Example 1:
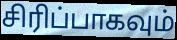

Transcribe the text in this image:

சிரிப்பாகவும்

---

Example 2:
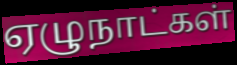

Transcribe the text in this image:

ஏழுநாட்கள்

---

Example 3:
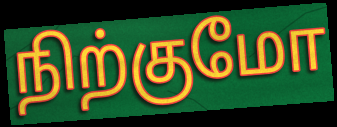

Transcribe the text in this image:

நிற்குமோ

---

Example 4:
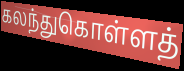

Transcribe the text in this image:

கலந்துகொள்ளத்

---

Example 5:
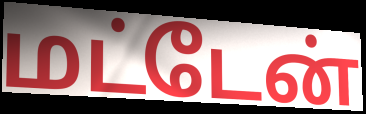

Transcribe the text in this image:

மட்டேன்